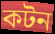
কটন